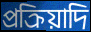
প্রক্রিয়াদি